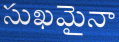
సుఖమైనా